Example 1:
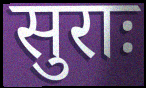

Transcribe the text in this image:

सुराः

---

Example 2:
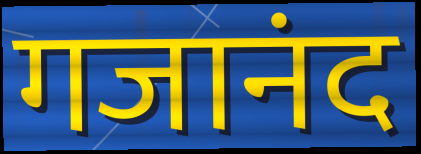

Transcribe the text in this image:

गजानंद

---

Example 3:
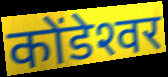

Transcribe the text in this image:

कोंडेश्वर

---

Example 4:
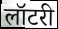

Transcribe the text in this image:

लॉटरी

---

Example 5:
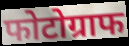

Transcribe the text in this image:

फोटोग्राफ